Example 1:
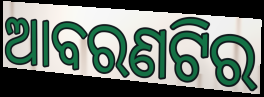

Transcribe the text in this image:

ଆବରଣଟିର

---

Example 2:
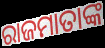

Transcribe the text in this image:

ରାଜମାତାଙ୍କ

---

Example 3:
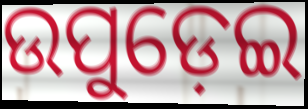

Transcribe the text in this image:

ଉପୁଡ଼େଇ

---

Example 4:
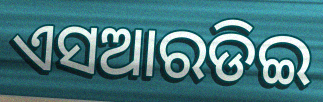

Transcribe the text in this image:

ଏସଆରଡିଇ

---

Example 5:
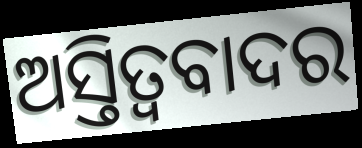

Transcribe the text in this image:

ଅସ୍ତିତ୍ବବାଦର